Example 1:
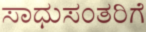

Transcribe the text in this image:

ಸಾಧುಸಂತರಿಗೆ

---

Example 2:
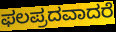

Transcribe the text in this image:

ಫಲಪ್ರದವಾದರೆ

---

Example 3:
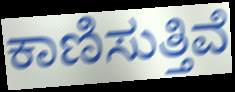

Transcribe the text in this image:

ಕಾಣಿಸುತ್ತಿವೆ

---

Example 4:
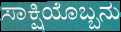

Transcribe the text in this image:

ಸಾಕ್ಷಿಯೊಬ್ಬನು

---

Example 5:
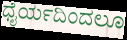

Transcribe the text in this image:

ಧೈರ್ಯದಿಂದಲೂ